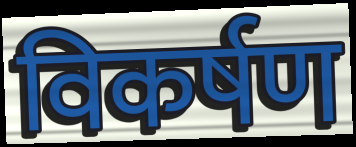
विकर्षण